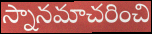
స్నానమాచరించి